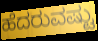
ಹೆದರುವಷ್ಟು